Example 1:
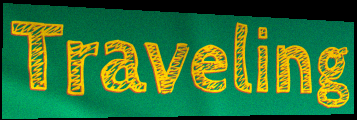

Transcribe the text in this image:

Traveling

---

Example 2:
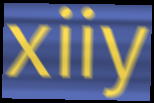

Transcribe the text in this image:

xiiy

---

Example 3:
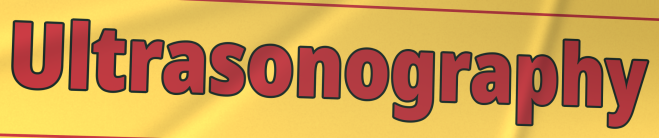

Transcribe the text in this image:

Ultrasonography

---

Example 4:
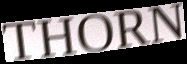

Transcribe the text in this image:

THORN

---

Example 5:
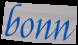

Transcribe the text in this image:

bonn